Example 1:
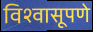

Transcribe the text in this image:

विश्वासूपणे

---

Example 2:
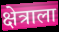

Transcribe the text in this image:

क्षेत्राला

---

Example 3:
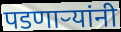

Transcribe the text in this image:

पडणाऱ्यांनी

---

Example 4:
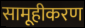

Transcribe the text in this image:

सामूहीकरण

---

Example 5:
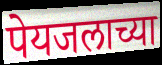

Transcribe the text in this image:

पेयजलाच्या